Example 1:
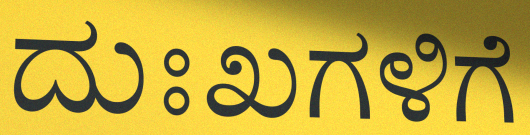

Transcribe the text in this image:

ದುಃಖಗಳಿಗೆ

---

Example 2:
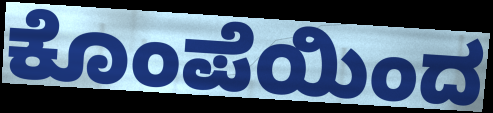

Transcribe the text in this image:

ಕೊಂಪೆಯಿಂದ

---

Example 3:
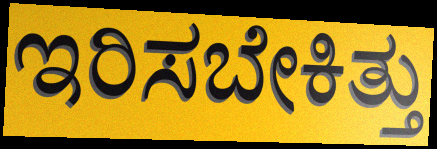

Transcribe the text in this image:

ಇರಿಸಬೇಕಿತ್ತು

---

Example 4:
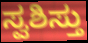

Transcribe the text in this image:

ಸ್ವಶಿಸ್ತು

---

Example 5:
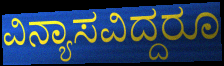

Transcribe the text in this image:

ವಿನ್ಯಾಸವಿದ್ದರೂ